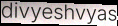
divyeshvyas